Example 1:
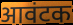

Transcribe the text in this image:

आवंटक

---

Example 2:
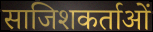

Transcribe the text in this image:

साजिशकर्ताओं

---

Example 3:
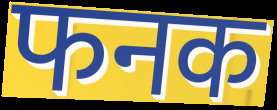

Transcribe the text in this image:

फनक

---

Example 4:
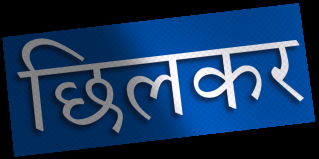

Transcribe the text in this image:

छिलकर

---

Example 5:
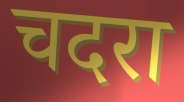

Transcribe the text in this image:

चदरा